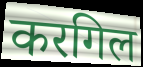
करगिल